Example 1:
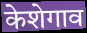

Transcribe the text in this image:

केशेगाव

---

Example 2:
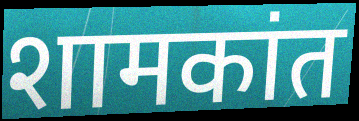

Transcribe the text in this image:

शामकांत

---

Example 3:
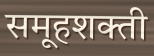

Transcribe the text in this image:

समूहशक्ती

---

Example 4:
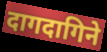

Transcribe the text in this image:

दागदागिने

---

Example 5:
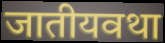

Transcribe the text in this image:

जातीयवथा